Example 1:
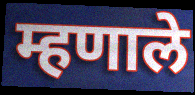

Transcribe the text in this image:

म्हणाले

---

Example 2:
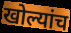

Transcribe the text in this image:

खोल्यांच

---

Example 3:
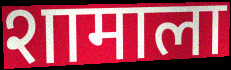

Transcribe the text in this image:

शामाला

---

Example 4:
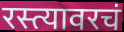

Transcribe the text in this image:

रस्त्यावरचं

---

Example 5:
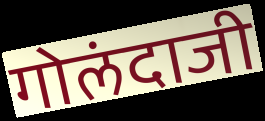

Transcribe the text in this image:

गोलंदाजी